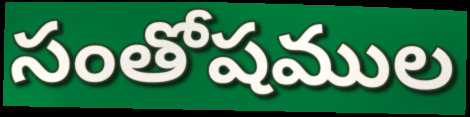
సంతోషముల